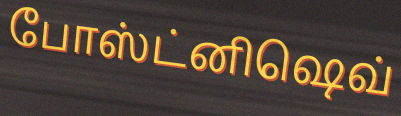
போஸ்ட்னிஷெவ்